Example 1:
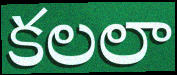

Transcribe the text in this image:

కలలా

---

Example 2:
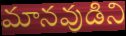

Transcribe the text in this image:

మానవుడిని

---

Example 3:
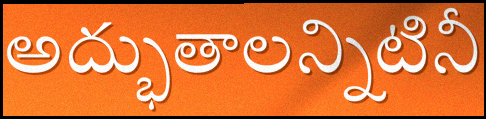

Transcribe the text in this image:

అద్భుతాలన్నిటినీ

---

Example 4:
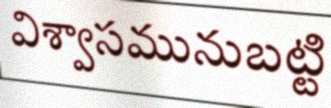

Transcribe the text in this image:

విశ్వాసమునుబట్టి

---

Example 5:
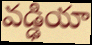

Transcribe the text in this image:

వడ్ఢియా